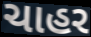
ચાહર